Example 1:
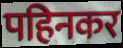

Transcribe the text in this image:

पहिनकर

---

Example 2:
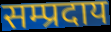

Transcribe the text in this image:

सम्प्रदाय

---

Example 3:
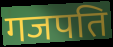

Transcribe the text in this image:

गजपति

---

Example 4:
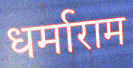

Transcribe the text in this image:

धर्माराम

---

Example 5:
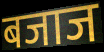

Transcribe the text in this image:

बजाज